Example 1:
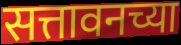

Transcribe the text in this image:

सत्तावनच्या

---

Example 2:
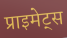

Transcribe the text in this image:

प्राइमेट्स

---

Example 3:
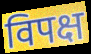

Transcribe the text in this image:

विपक्ष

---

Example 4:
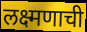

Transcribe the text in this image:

लक्ष्मणाची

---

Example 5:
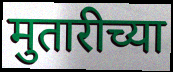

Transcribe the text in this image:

मुतारीच्या